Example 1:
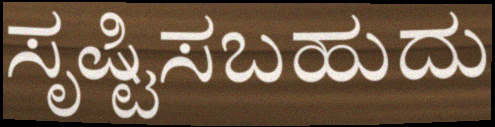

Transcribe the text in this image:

ಸೃಷ್ಟಿಸಬಹುದು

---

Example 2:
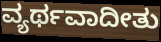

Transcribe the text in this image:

ವ್ಯರ್ಥವಾದೀತು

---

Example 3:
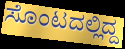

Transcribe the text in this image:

ಸೊಂಟದಲ್ಲಿದ್ದ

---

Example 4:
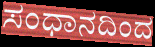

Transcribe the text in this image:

ಸಂಧಾನದಿಂದ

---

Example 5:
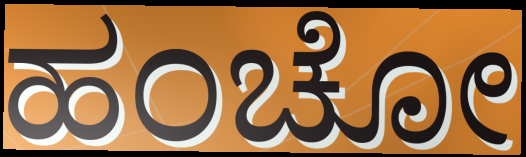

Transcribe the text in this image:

ಹಂಚೋ